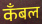
कँबल